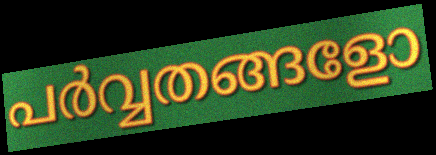
പർവ്വതങ്ങളോ